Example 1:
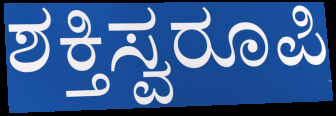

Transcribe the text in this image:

ಶಕ್ತಿಸ್ವರೂಪಿ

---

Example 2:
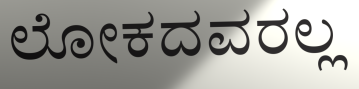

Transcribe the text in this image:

ಲೋಕದವರಲ್ಲ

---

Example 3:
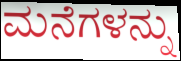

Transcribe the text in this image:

ಮನೆಗಳನ್ನು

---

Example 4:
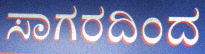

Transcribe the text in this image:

ಸಾಗರದಿಂದ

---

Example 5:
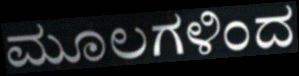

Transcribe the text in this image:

ಮೂಲಗಳಿಂದ